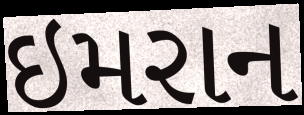
ઇમરાન